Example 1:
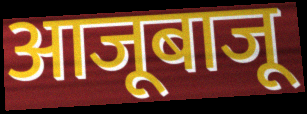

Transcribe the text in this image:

आजूबाजू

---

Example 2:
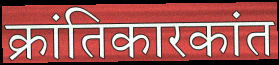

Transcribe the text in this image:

क्रांतिकारकांत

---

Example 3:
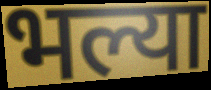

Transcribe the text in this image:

भल्या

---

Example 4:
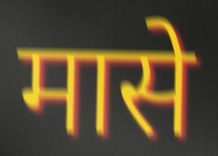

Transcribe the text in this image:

मासे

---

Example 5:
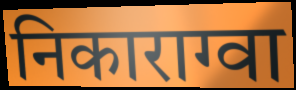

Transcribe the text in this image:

निकाराग्वा